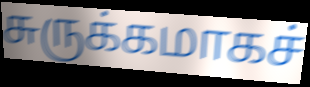
சுருக்கமாகச்